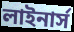
লাইনার্স